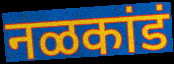
नळकांडं